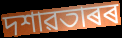
দশাৱতাৰৰ